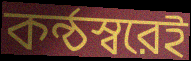
কন্ঠস্বরেই